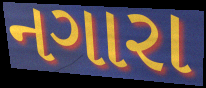
નગારા